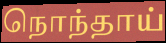
நொந்தாய்